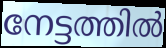
നേട്ടത്തിൽ